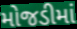
મોજડીમાં